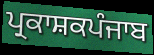
ਪ੍ਰਕਾਸ਼ਕਪੰਜਾਬ